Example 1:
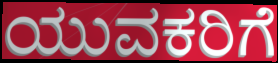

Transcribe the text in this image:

ಯುವಕರಿಗೆ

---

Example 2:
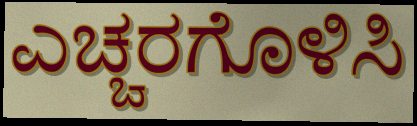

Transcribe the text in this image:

ಎಚ್ಚರಗೊಳಿಸಿ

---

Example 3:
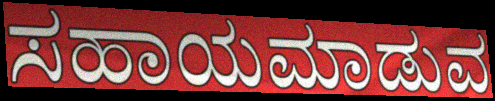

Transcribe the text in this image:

ಸಹಾಯಮಾಡುವ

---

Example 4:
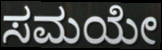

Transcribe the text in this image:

ಸಮಯೇ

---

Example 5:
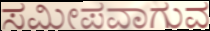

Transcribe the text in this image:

ಸಮೀಪವಾಗುವ